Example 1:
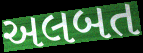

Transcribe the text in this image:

અલબત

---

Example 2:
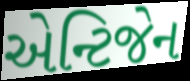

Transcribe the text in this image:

એન્ટિજેન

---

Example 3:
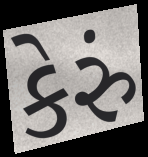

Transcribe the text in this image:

કેરું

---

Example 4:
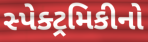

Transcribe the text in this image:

સ્પેક્ટ્રમિકીનો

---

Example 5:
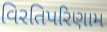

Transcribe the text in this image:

વિરતિપરિણામ